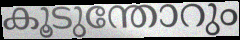
കൂടുന്തോറും